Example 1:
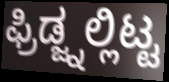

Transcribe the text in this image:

ಫ್ರಿಡ್ಜ್ನಲ್ಲಿಟ್ಟ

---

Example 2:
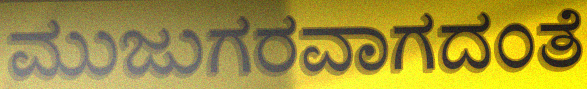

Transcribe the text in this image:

ಮುಜುಗರವಾಗದಂತೆ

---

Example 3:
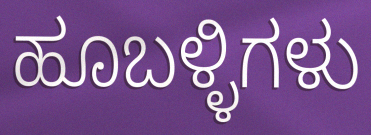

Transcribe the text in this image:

ಹೂಬಳ್ಳಿಗಳು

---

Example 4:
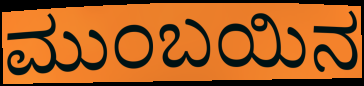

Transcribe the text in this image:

ಮುಂಬಯಿನ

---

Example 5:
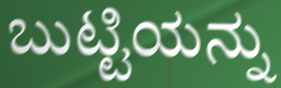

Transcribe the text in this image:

ಬುಟ್ಟಿಯನ್ನು